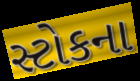
સ્ટોકના